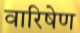
वारिषेण